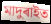
মাদুৰাইত